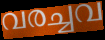
വരച്ചവ